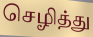
செழித்து